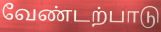
வேண்டற்பாடு